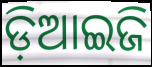
ଡ଼ିଆଇଜି